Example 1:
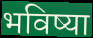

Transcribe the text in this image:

भविष्या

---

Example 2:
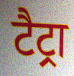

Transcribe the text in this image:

टैट्रा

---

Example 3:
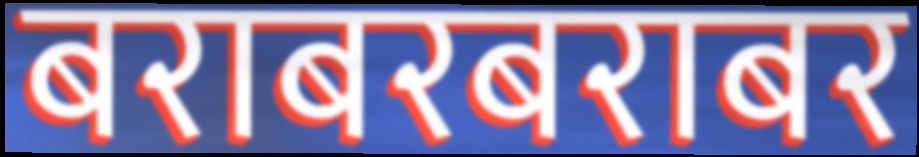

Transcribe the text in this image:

बराबरबराबर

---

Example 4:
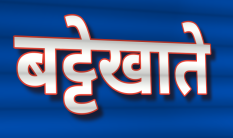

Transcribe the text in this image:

बट्टेखाते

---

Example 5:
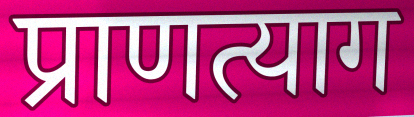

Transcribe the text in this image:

प्राणत्याग